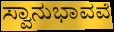
ಸ್ವಾನುಭಾವವೆ